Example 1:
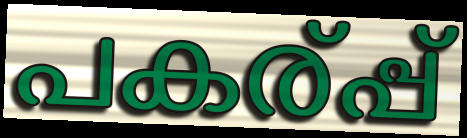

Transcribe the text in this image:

പകര്പ്പ്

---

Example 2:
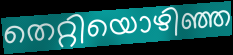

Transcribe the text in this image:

തെറ്റിയൊഴിഞ്ഞ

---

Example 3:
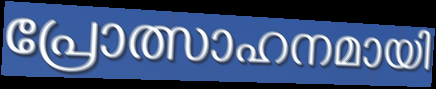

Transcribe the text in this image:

പ്രോത്സാഹനമായി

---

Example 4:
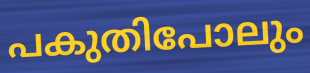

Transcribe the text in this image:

പകുതിപോലും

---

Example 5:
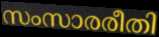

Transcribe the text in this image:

സംസാരരീതി